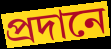
প্ৰদানে